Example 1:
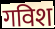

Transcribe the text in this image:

गविश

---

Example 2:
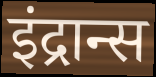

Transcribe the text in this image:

इंद्रान्स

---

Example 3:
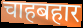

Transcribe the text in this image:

चाहबहार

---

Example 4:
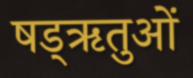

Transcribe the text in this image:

षड्ऋतुओं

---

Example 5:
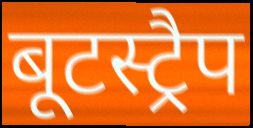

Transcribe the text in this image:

बूटस्ट्रैप